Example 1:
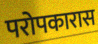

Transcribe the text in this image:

परोपकारास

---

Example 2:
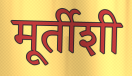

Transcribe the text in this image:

मूर्तीशी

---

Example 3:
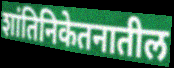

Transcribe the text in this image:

शांतिनिकेतनातील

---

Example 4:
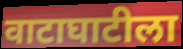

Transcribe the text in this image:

वाटाघाटीला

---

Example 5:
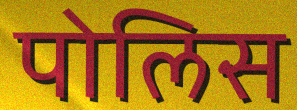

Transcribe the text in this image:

पोलिस